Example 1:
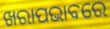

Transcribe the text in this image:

ଖରାପଭାବରେ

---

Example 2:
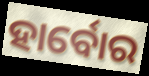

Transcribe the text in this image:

ହାର୍ବୋର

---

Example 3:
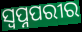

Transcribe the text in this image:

ସ୍ୱପ୍ନପରୀର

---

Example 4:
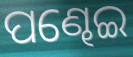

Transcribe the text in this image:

ପଣ୍ଢେଇ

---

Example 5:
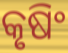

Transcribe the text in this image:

କୃଷିଂ